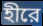
হীরে